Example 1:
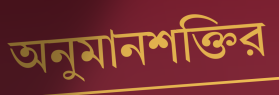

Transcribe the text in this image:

অনুমানশক্তির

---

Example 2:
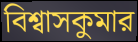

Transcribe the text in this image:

বিশ্বাসকুমার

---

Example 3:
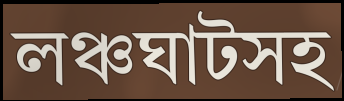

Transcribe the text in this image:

লঞ্চঘাটসহ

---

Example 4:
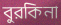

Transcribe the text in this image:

বুরকিনা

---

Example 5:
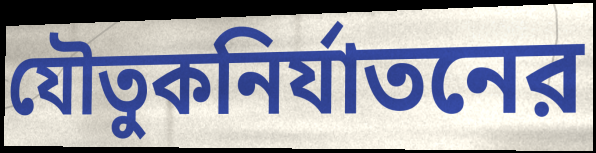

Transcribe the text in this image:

যৌতুকনির্যাতনের